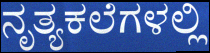
ನೃತ್ಯಕಲೆಗಳಲ್ಲಿ